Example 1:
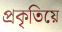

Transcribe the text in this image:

প্ৰকৃতিয়ে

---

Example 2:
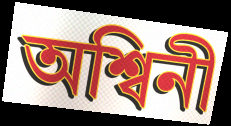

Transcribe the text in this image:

অশ্বিনী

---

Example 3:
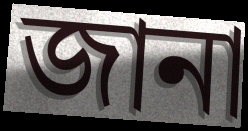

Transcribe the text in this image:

জানা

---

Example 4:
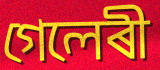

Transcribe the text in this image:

গেলেৰী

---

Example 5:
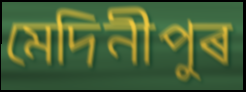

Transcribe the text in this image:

মেদিনীপুৰ